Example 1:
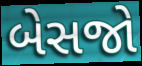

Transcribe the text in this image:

બેસજો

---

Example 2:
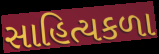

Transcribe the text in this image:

સાહિત્યકળા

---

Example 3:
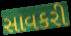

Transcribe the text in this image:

સાવકરી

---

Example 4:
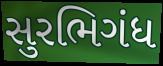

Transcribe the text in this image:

સુરભિગંધ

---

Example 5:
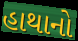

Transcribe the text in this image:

હાથાનો